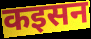
कइसन